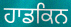
ਹਾਡਕਿਨ